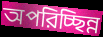
অপরিচ্ছিন্ন